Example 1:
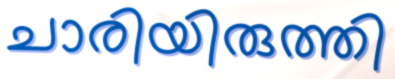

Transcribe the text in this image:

ചാരിയിരുത്തി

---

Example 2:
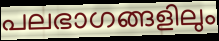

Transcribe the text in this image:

പലഭാഗങ്ങളിലും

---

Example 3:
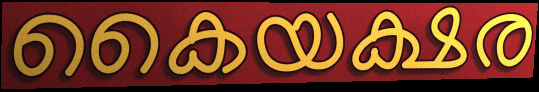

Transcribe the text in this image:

കൈയക്ഷര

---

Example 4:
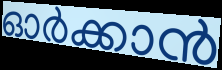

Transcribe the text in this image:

ഓർക്കാൻ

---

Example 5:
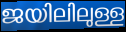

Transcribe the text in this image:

ജയിലിലുള്ള